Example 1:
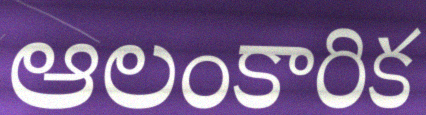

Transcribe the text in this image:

ఆలంకారిక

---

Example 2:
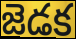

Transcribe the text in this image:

జెడక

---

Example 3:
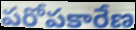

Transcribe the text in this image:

పరోపకారేణ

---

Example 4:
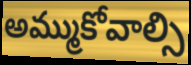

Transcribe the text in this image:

అమ్ముకోవాల్సి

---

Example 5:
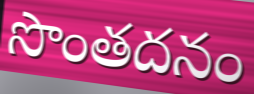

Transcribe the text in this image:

సొంతదనం